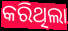
କରିଥିଲା